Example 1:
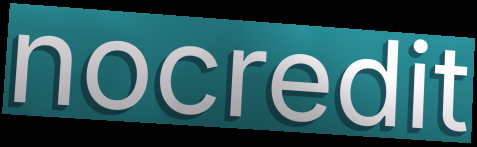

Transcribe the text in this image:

nocredit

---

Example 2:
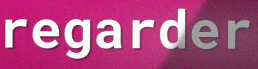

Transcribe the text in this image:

regarder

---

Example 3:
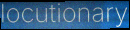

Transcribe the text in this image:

locutionary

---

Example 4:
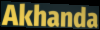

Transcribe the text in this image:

Akhanda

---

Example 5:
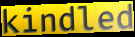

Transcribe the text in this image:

kindled